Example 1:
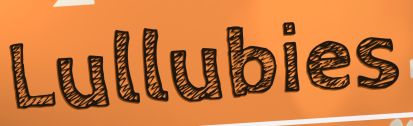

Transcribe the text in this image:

Lullubies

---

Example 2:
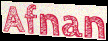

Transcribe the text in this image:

Afnan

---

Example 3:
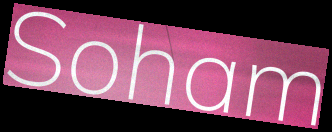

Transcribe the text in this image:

Soham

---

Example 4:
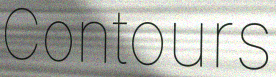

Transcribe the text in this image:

Contours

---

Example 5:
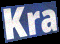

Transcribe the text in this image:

Kra